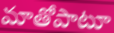
మాతోపాటూ